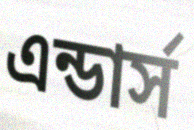
এন্ডার্স